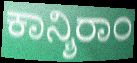
ಕಾನ್ಶಿರಾಂ